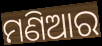
ମଣିଆର